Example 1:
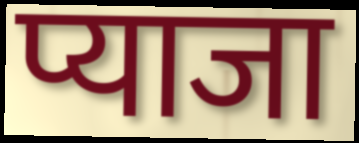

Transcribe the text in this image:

प्याजा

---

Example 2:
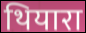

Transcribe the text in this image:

थियारा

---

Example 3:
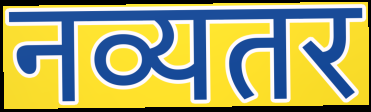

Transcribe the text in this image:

नव्यतर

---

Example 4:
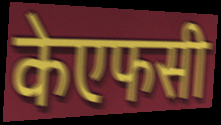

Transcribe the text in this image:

केएफसी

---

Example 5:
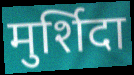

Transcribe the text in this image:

मुर्शिदा